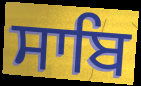
ਸਾਬਿ